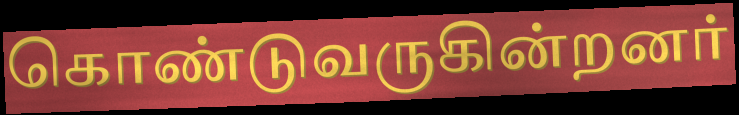
கொண்டுவருகின்றனர்